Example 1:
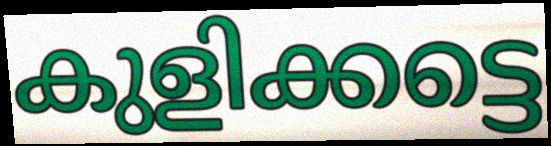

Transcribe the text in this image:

കുളിക്കട്ടെ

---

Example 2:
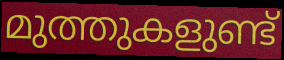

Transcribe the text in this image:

മുത്തുകളുണ്ട്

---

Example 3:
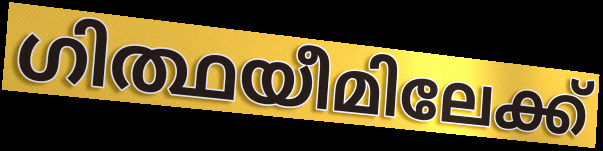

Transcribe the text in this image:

ഗിത്ഥയീമിലേക്ക്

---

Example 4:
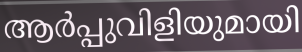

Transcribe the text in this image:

ആർപ്പുവിളിയുമായി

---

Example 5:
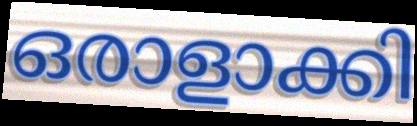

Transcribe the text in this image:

ഒരാളാക്കി